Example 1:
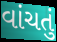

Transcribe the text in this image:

વાંચતું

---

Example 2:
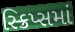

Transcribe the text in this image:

સ્ક્રિપ્સમાં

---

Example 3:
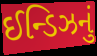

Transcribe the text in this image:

ઈન્ડિઝનું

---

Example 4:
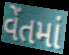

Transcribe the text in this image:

વેંતમાં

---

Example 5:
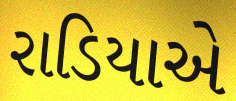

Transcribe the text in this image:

રાડિયાએ